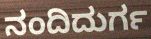
ನಂದಿದುರ್ಗ